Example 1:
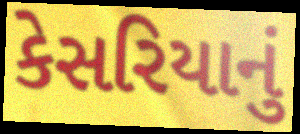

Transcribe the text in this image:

કેસરિયાનું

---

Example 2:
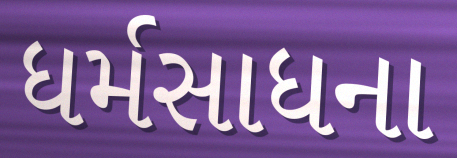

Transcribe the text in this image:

ધર્મસાધના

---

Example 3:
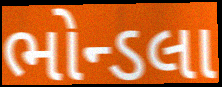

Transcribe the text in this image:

ભોન્ડલા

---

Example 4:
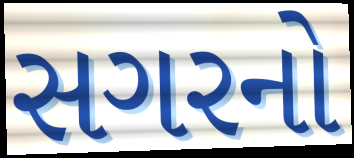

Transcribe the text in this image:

સગરનો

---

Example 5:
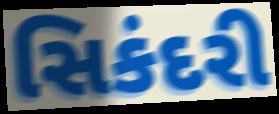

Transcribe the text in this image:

સિકંદરી